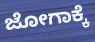
ಜೋಗಾಕ್ಕೆ